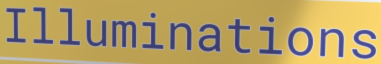
Illuminations